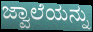
ಜ್ವಾಲೆಯನ್ನು